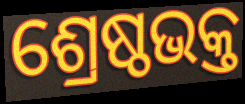
ଶ୍ରେଷ୍ଠଭକ୍ତ